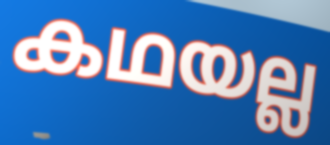
കഥയല്ല